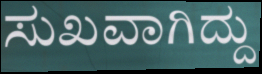
ಸುಖವಾಗಿದ್ದು